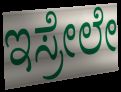
ಇಸ್ರೇಲೇ